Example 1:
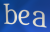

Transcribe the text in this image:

bea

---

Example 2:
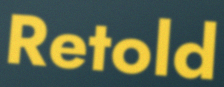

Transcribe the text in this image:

Retold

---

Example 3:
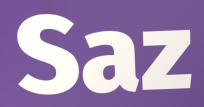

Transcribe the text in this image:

Saz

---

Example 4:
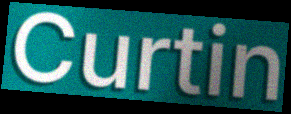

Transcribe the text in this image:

Curtin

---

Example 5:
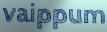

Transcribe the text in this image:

vaippum